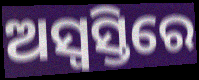
ଅସ୍ୱସ୍ତିରେ